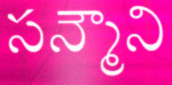
సన్మౌని